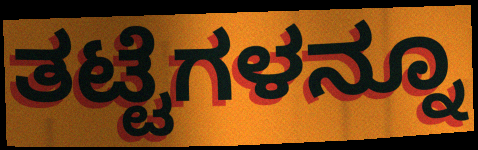
ತಟ್ಟೆಗಳನ್ನೂ